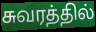
சுவரத்தில்